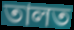
তালত